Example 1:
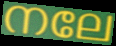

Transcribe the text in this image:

നലേ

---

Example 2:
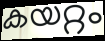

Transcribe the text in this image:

കയറ്റം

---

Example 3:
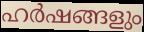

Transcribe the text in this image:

ഹർഷങ്ങളും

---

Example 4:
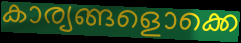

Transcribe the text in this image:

കാര്യങ്ങളൊക്കെ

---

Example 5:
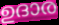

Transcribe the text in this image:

ഉദാര